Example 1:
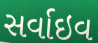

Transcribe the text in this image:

સર્વાઇવ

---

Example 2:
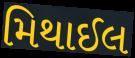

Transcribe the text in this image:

મિથાઈલ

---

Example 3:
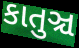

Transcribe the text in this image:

કાતુઞ્ચ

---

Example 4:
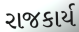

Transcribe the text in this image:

રાજકાર્ય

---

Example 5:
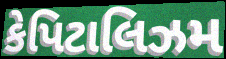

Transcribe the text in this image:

કેપિટાલિઝમ